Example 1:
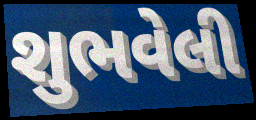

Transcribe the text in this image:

શુભવેલી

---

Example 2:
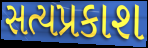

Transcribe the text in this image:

સત્યપ્રકાશ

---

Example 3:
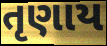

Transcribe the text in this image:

તૃણાય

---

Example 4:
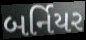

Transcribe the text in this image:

બર્નિયર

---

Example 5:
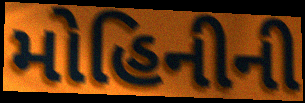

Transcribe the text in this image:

મોહિનીની